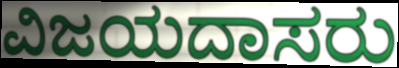
ವಿಜಯದಾಸರು